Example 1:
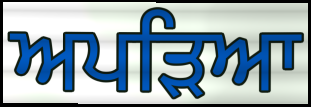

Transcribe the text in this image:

ਅਪੜਿਆ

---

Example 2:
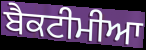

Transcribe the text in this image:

ਬੈਕਟੀਮੀਆ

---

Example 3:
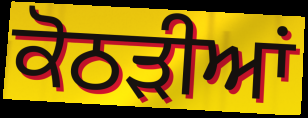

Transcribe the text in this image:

ਕੋਠੜੀਆਂ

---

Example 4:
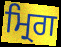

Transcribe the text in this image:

ਮ੍ਰਿਗ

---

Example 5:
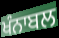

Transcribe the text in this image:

ਖੰਨਾਬਲ